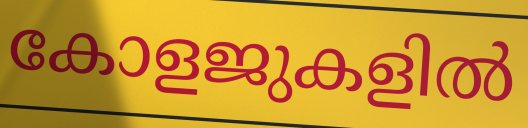
കോളജുകളിൽ